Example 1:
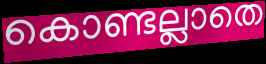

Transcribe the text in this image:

കൊണ്ടല്ലാതെ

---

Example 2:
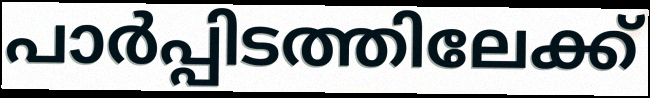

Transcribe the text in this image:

പാർപ്പിടത്തിലേക്ക്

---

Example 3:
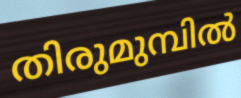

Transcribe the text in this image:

തിരുമുമ്പിൽ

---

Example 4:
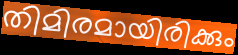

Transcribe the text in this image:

തിമിരമായിരിക്കും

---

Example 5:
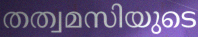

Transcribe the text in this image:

തത്വമസിയുടെ